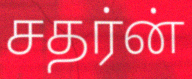
சதர்ன்